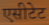
एसीटेट